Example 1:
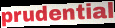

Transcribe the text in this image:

prudential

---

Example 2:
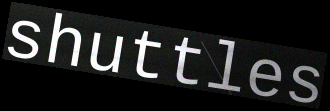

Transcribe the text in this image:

shuttles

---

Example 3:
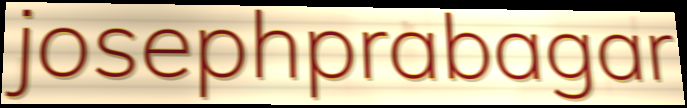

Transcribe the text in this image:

josephprabagar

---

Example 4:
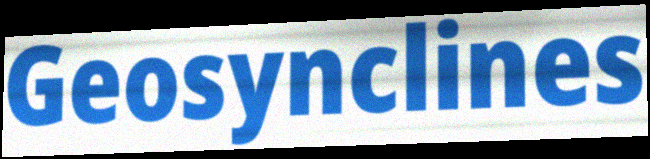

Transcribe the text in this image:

Geosynclines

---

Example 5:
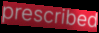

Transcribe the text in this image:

prescribed